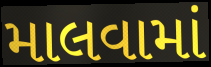
માલવામાં